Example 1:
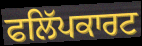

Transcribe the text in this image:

ਫਲਿੱਪਕਾਰਟ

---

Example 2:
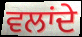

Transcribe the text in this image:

ਵਲਾਂਦੇ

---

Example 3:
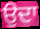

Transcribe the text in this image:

ਉਦਾ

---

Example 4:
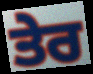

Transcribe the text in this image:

ਤੇਰ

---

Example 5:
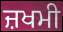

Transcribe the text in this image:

ਜ਼ਖਮੀ